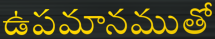
ఉపమానముతో